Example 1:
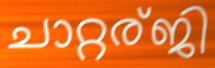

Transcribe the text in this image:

ചാറ്റര്ജി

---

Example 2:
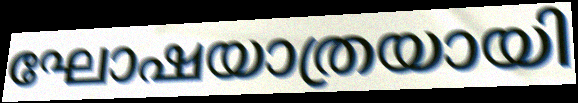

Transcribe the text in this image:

ഘോഷയാത്രയായി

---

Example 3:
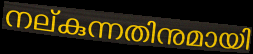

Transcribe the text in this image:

നല്‌കുന്നതിനുമായി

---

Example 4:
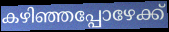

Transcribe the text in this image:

കഴിഞ്ഞപ്പോഴേക്ക്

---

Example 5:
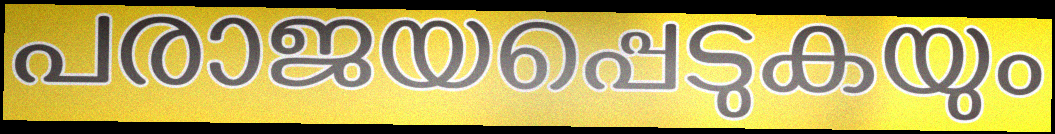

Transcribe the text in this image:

പരാജയപ്പെടുകയും